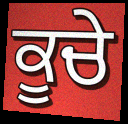
ਕੂਚੇ